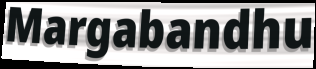
Margabandhu